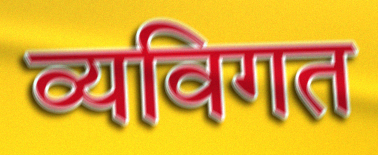
व्यविगत